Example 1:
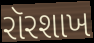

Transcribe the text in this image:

રૉરશાખ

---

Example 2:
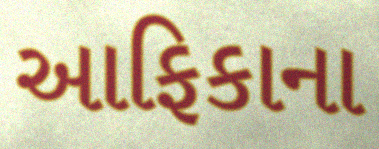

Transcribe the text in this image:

આફિકાના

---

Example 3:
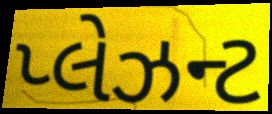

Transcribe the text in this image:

પ્લેઝન્ટ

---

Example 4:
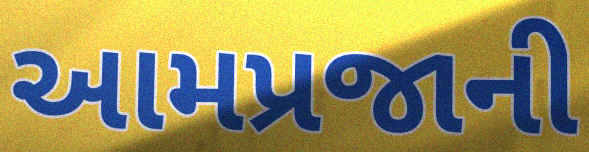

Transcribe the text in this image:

આમપ્રજાની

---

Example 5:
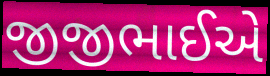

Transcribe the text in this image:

જીજીભાઈએ